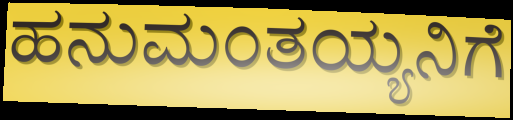
ಹನುಮಂತಯ್ಯನಿಗೆ